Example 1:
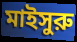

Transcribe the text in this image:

মাইসুরু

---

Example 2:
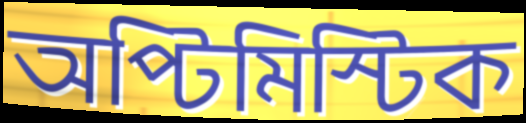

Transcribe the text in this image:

অপ্টিমিস্টিক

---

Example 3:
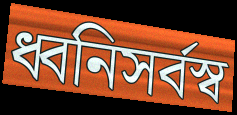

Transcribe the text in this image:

ধ্বনিসর্বস্ব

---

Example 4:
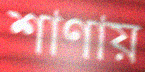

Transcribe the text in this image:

শাণায়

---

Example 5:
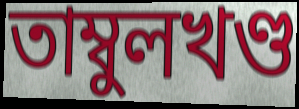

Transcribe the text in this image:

তাম্বুলখণ্ড